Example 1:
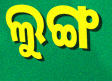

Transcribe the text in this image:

ଲୁଙ୍ଗ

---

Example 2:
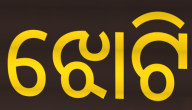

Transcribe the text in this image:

ଝୋଟି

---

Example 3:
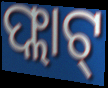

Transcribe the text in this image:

ଫ୍ଲାଟ୍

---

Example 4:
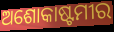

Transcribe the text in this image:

ଅଶୋକାଷ୍ଟମୀର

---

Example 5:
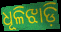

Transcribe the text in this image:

ଧୂଳିଝାଡ଼ି